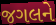
જગલને